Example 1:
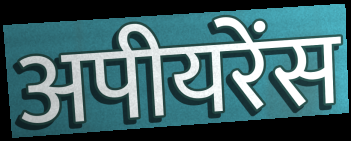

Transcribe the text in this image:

अपीयरेंस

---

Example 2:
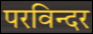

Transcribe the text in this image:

परविन्दर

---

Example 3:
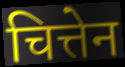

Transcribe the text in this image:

चित्तेन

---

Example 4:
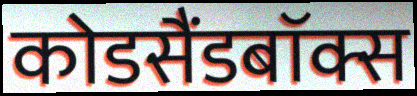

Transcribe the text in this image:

कोडसैंडबॉक्स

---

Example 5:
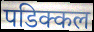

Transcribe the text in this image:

पडिक्कल